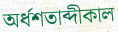
অর্ধশতাব্দীকাল